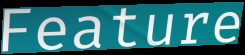
Feature